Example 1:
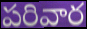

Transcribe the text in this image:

పరివార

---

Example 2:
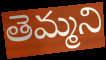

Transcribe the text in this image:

తెమ్మని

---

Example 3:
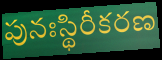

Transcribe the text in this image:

పునఃస్థిరీకరణ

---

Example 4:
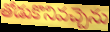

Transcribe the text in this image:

తోడుకొనివచ్చెను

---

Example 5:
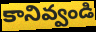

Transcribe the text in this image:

కానివ్వండి